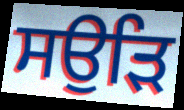
ਸਉੜਿ